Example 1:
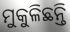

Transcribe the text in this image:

ମୁକୁଳିଛନ୍ତି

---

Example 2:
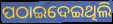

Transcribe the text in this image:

ପଠାଇଦେଇଥିଲି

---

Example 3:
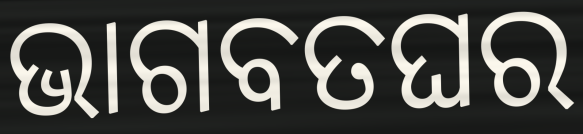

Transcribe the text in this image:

ଭାଗବତଘର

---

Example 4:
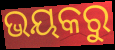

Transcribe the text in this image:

ଭୟକରୁ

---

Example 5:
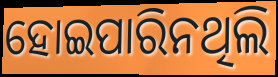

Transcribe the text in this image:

ହୋଇପାରିନଥିଲି